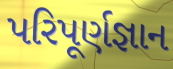
પરિપૂર્ણજ્ઞાન